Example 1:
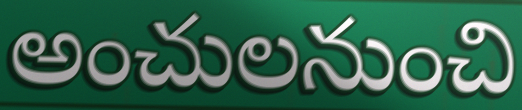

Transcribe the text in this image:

అంచులనుంచి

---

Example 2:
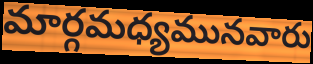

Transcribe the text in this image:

మార్గమధ్యమునవారు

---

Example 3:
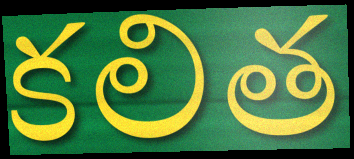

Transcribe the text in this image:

కలిత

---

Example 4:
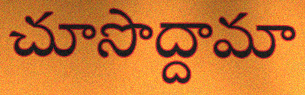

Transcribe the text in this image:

చూసొద్దామా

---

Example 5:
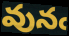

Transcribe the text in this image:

వునఁ